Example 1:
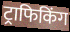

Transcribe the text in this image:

ट्राफिकिंग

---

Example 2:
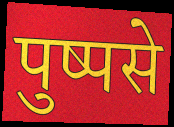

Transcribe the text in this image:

पुष्पसे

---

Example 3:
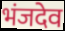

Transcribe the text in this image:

भंजदेव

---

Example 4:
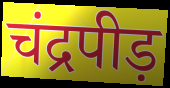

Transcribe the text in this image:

चंद्रपीड़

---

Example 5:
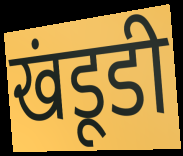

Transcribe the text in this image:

खंडूडी